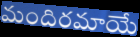
మందిరమాయే